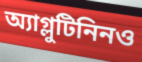
অ্যাগ্লুটিনিনও